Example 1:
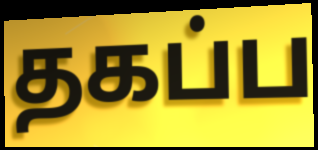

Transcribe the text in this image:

தகப்ப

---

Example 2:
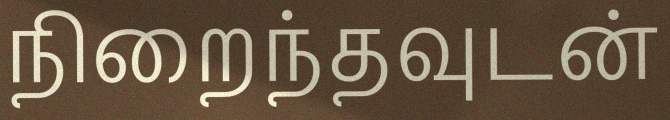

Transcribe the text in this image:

நிறைந்தவுடன்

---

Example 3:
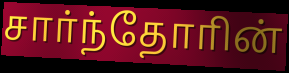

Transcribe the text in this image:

சார்ந்தோரின்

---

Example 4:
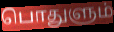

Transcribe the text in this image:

பொதுளும்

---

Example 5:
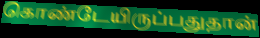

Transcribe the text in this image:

கொண்டேயிருப்பதுதான்